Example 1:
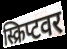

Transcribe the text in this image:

स्क्रिप्टवर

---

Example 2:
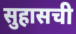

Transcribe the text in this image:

सुहासची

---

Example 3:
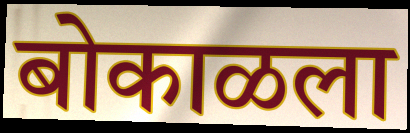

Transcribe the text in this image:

बोकाळला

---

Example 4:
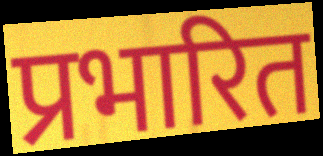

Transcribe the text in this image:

प्रभारित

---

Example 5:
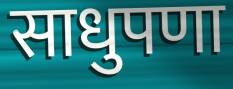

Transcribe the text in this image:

साधुपणा